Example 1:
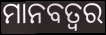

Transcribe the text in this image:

ମାନବତ୍ୱର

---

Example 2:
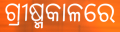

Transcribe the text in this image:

ଗ୍ରୀଷ୍ମକାଳରେ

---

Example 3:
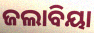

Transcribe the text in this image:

ଜଲାବିୟା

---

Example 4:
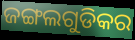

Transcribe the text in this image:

ଜଙ୍ଗଲଗୁଡିକର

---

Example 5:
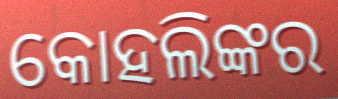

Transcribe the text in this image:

କୋହଲିଙ୍କର